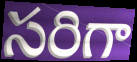
సరిగా